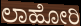
ಲಾಹೋರಿ